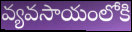
వ్యవసాయంలోకి